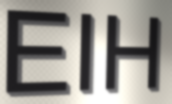
EIH